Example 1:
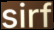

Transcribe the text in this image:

sirf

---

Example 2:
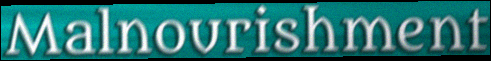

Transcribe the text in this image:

Malnourishment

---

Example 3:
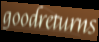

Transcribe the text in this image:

goodreturns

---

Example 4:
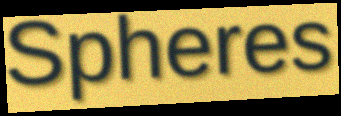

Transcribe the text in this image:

Spheres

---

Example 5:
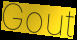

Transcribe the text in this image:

Gout